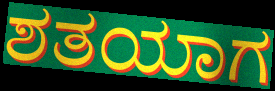
ಶತಯಾಗ